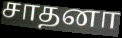
சாதனா